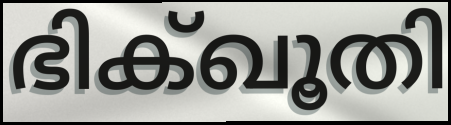
ഭിക്ഖൂതി